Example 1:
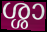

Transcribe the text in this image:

ശ്ശാ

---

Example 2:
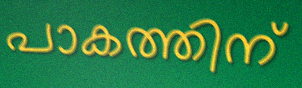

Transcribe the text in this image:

പാകത്തിന്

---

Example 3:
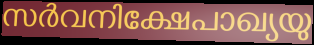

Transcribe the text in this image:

സർവനിക്ഷേപാഖ്യയു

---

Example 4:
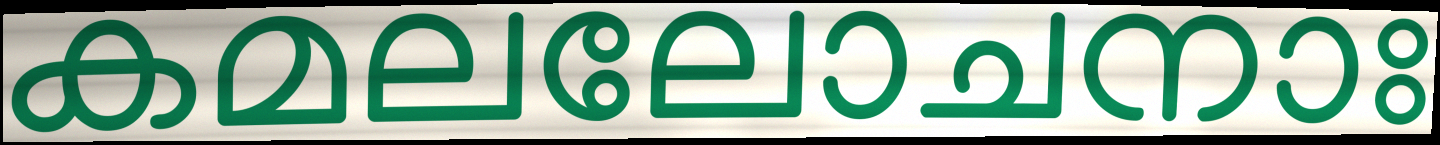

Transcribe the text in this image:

കമലലോചനാഃ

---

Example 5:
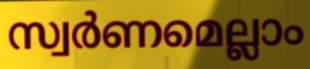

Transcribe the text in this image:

സ്വർണമെല്ലാം